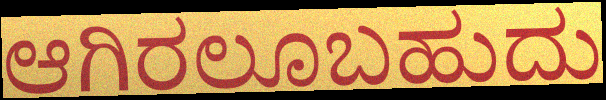
ಆಗಿರಲೂಬಹುದು